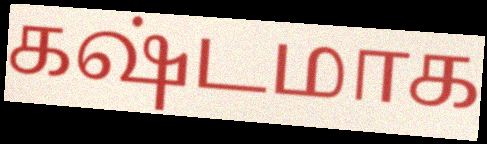
கஷ்டமாக